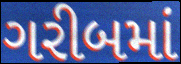
ગરીબમાં